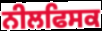
ਨੀਲਫਿਸਕ